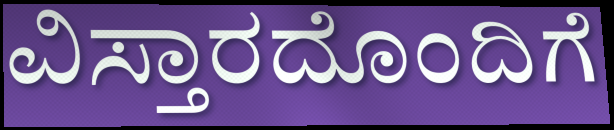
ವಿಸ್ತಾರದೊಂದಿಗೆ